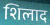
शिलाद